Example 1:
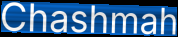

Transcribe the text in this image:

Chashmah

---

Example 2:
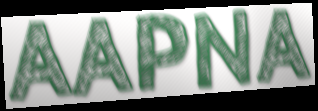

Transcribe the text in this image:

AAPNA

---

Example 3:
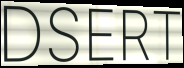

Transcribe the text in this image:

DSERT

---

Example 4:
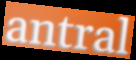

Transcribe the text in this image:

antral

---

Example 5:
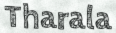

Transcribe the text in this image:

Tharala